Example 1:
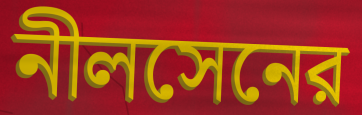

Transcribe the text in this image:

নীলসেনের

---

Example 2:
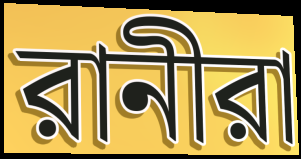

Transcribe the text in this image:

রানীরা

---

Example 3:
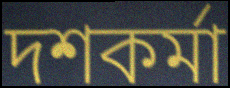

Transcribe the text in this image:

দশকর্মা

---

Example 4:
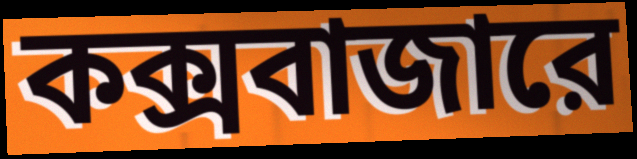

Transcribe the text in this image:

কক্সবাজারে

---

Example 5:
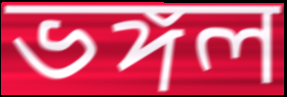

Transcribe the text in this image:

ভঙ্গল